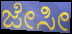
ಜೇಸೀ